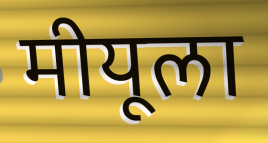
मीयूला